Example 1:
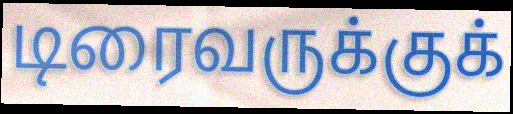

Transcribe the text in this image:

டிரைவருக்குக்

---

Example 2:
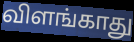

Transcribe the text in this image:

விளங்காது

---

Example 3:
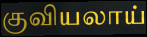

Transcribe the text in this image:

குவியலாய்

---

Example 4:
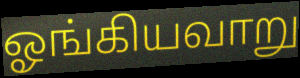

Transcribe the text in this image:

ஓங்கியவாறு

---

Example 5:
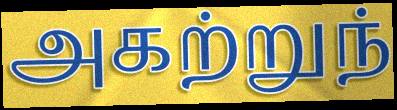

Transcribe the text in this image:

அகற்றுந்